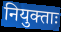
नियुक्ताः